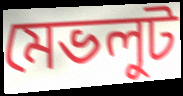
মেভলুট